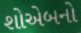
શોએબનો